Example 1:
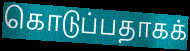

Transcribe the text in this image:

கொடுப்பதாகக்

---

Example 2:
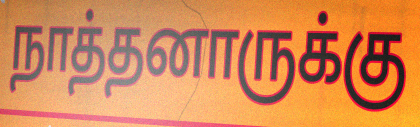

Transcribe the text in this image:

நாத்தனாருக்கு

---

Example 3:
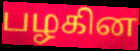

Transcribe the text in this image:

பழகின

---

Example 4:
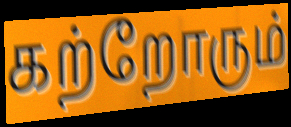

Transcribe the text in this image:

கற்றோரும்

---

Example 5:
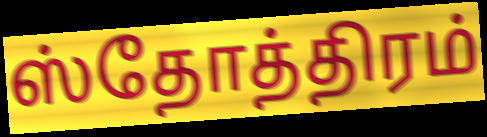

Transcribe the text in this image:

ஸ்தோத்திரம்